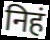
निहं